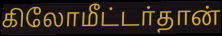
கிலோமீட்டர்தான்